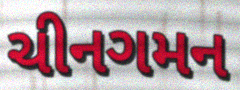
ચીનગમન